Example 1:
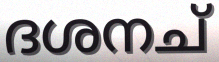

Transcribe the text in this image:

ദശനച്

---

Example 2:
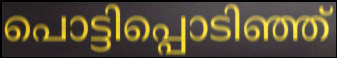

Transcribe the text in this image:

പൊട്ടിപ്പൊടിഞ്ഞ്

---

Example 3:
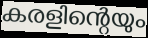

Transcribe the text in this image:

കരളിന്റെയും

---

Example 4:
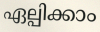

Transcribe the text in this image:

ഏല്പിക്കാം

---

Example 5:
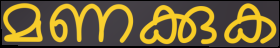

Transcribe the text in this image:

മണക്കുക